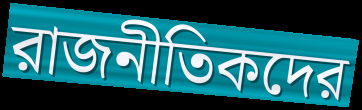
রাজনীতিকদের